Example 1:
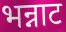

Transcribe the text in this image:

भन्नाट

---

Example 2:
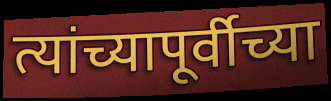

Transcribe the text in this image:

त्यांच्यापूर्वीच्या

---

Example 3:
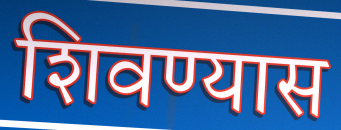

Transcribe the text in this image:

शिवण्यास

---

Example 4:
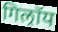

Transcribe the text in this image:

गिल्रॉय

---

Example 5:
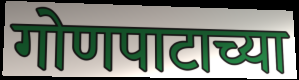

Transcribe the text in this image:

गोणपाटाच्या